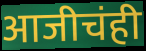
आजीचंही